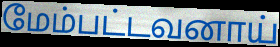
மேம்பட்டவனாய்